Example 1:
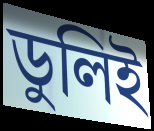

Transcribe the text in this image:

ডুলিই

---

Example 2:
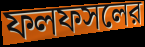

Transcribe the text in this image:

ফলফসলের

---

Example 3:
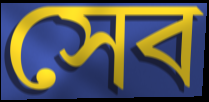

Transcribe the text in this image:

সেব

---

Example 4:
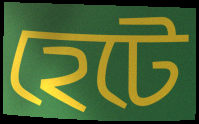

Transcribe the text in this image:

হেটে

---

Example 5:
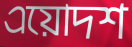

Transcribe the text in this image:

এয়োদশ